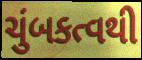
ચુંબકત્વથી